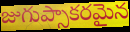
జుగుప్సాకరమైన